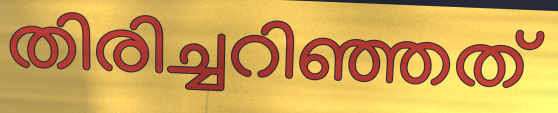
തിരിച്ചറിഞ്ഞത്